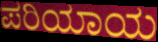
ಪರಿಯಾಯ